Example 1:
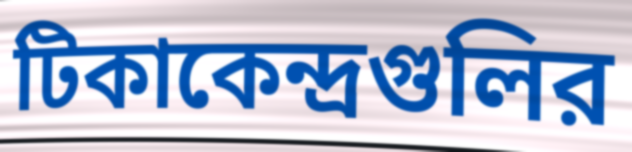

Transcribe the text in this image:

টিকাকেন্দ্রগুলির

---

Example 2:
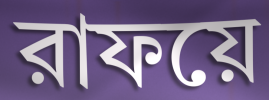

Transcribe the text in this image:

রাফয়ে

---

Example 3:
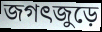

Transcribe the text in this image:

জগৎজুড়ে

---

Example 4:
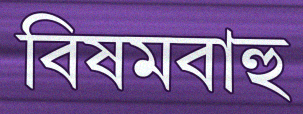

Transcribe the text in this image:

বিষমবাহু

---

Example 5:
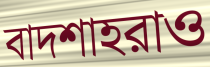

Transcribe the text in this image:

বাদশাহরাও